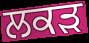
ਲਕੜ